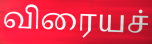
விரையச்